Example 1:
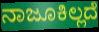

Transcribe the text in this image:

ನಾಜೂಕಿಲ್ಲದೆ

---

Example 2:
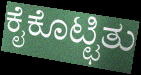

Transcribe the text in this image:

ಕೈಕೊಟ್ಟಿತು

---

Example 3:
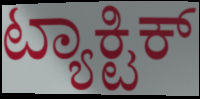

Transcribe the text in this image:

ಟ್ಯಾಕ್ಟಿಕ್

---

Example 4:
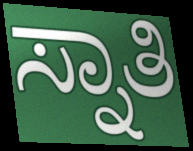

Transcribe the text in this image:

ಸ್ನಾತಿ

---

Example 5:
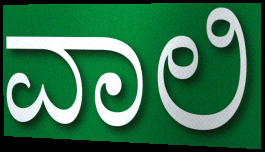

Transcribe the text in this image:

ವಾಲಿ